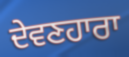
ਦੇਵਣਹਾਰਾ